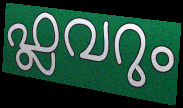
ഫ്ലവറും